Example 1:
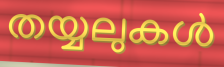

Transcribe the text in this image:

തയ്യലുകൾ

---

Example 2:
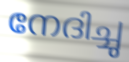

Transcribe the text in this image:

നേദിച്ചു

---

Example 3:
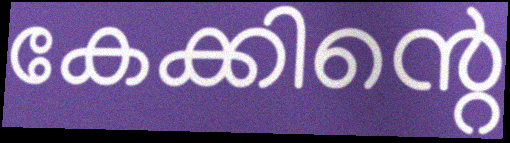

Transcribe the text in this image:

കേക്കിന്റെ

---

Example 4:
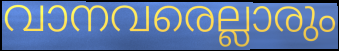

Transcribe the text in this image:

വാനവരെല്ലാരും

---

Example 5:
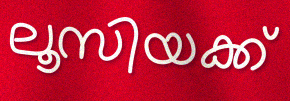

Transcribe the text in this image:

ലൂസിയക്ക്